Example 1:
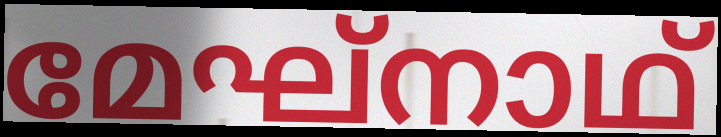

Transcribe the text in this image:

മേഘ്നാഥ്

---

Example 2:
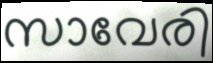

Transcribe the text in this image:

സാവേരി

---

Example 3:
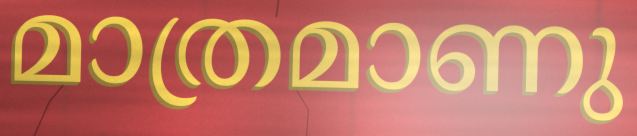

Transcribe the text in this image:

മാത്രമാണു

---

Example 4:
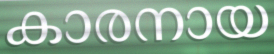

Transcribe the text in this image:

കാരനായ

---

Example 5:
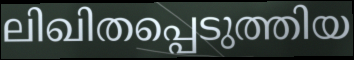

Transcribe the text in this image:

ലിഖിതപ്പെടുത്തിയ